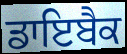
ਡਾਇਬੈਕ